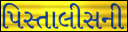
પિસ્તાલીસની